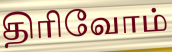
திரிவோம்